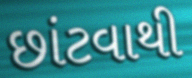
છાંટવાથી